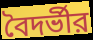
বৈদর্ভীর